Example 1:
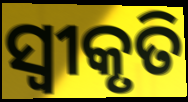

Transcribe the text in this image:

ସ୍ୱୀକୃତି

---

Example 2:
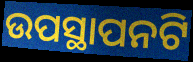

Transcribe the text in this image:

ଉପସ୍ଥାପନଟି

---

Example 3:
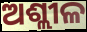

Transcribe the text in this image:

ଅଶ୍ଲୀଳ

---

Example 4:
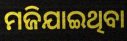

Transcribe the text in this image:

ମଜିଯାଇଥିବା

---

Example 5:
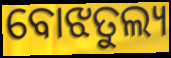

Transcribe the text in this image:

ବୋଝତୁଲ୍ୟ